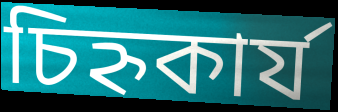
চিহ্নকার্য